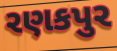
રણકપુર